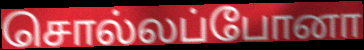
சொல்லப்போனா